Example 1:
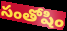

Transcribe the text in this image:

సంతోషిం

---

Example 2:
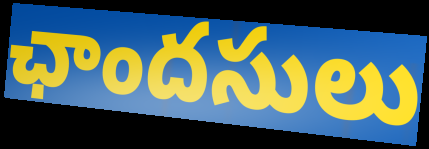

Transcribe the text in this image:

ఛాందసులు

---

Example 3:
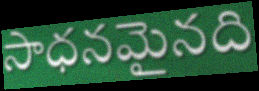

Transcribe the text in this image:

సాధనమైనది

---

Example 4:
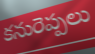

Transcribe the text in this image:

కనురెప్పలు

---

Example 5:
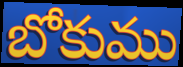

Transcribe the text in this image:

బోకుము